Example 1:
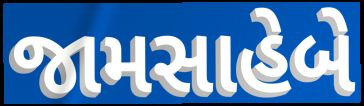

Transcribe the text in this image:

જામસાહેબે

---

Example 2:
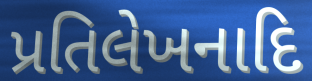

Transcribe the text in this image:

પ્રતિલેખનાદિ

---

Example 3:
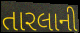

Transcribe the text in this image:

તારલાની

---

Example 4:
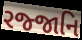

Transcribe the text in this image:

રજ્જાનિ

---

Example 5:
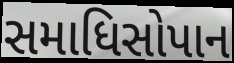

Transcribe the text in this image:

સમાધિસોપાન